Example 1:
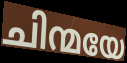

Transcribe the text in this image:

ചിന്മയേ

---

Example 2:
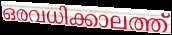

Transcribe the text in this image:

ഒരവധിക്കാലത്ത്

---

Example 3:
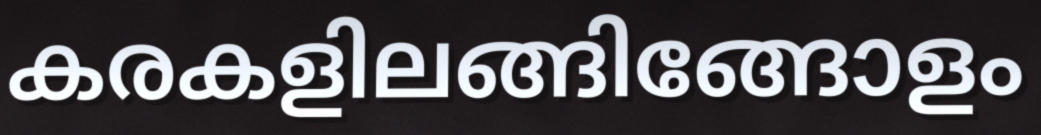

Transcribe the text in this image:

കരകളിലങ്ങിങ്ങോളം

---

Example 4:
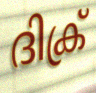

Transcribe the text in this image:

ദിക്ര്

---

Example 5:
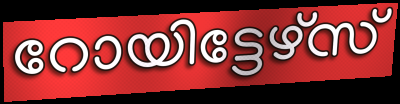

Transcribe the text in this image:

റോയിട്ടേഴ്സ്